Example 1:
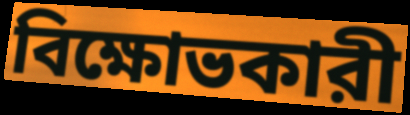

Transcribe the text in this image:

বিক্ষোভকারী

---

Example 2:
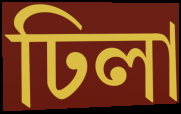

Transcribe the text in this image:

ঢিলা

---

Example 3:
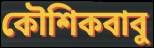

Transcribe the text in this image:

কৌশিকবাবু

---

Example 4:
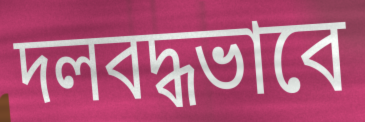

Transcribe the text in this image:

দলবদ্ধভাবে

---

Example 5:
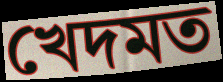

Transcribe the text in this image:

খেদমত